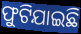
ଫୁଟିଯାଇଛି